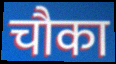
चौका